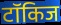
टॉकिज